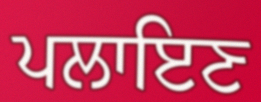
ਪਲਾਇਣ